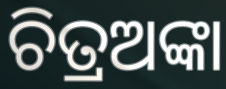
ଚିତ୍ରଅଙ୍କା